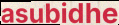
asubidhe